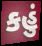
કહું